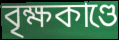
বৃক্ষকাণ্ডে